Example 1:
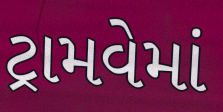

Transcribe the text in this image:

ટ્રામવેમાં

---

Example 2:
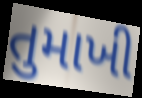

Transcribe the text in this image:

તુમાખી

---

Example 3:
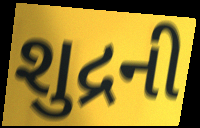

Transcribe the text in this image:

શુદ્રની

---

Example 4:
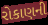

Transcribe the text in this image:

રોકાણની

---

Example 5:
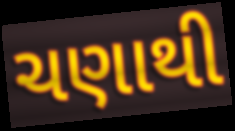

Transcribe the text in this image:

ચણાથી